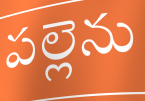
పల్లెను